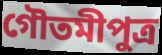
গৌতমীপুত্র